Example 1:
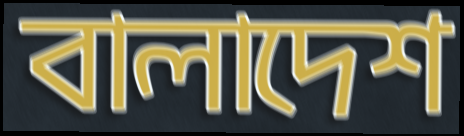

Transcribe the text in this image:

বালাদেশ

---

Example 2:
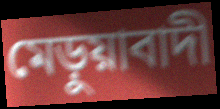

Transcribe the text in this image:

মেড়ুয়াবাদী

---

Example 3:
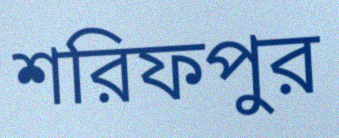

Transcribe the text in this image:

শরিফপুর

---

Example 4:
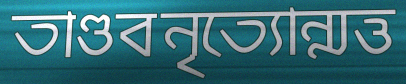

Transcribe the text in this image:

তাণ্ডবনৃত্যোন্মত্ত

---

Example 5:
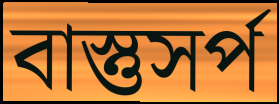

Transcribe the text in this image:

বাস্তুসর্প